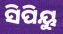
ସିପିୟୁ